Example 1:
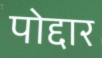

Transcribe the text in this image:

पोद्दार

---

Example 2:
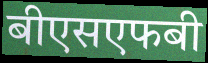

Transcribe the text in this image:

बीएसएफबी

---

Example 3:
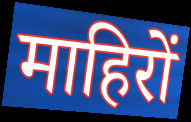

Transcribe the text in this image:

माहिरों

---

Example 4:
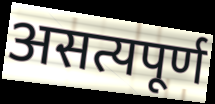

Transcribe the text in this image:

असत्यपूर्ण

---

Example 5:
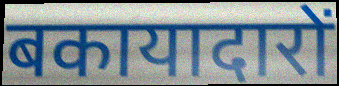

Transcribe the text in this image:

बकायादारों